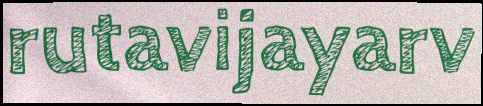
rutavijayarv